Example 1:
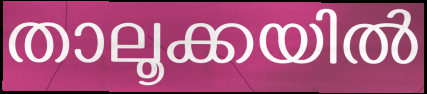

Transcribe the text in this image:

താലൂക്കയിൽ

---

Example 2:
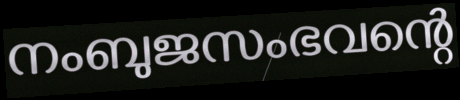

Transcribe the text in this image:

നംബുജസംഭവന്റെ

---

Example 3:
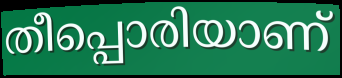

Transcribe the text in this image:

തീപ്പൊരിയാണ്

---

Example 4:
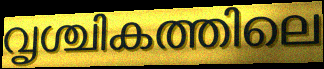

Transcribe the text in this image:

വൃശ്ചികത്തിലെ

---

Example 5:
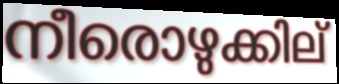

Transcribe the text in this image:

നീരൊഴുക്കില്